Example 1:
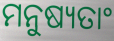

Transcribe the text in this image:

ମନୁଷ୍ୟତାଂ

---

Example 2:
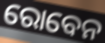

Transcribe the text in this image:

ରୋବେନ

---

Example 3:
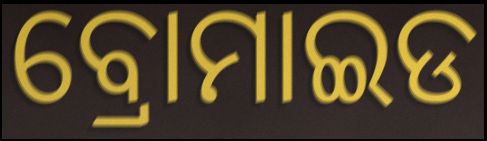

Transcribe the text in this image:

ବ୍ରୋମାଇଡ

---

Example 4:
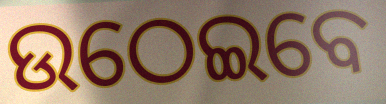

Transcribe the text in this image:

ଉଠେଇବେ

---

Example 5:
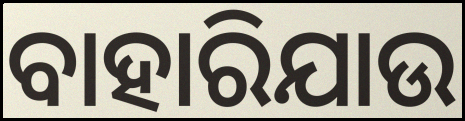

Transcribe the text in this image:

ବାହାରିଯାଉ